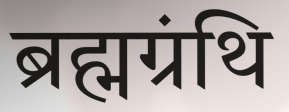
ब्रह्मग्रंथि